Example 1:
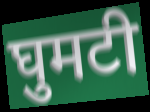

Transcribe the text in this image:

घुमटी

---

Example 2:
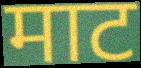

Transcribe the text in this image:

माट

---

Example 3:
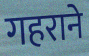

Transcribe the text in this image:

गहराने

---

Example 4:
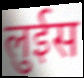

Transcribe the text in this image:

लुईस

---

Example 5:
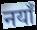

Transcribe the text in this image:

नयाँ